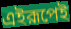
এইরূপেই